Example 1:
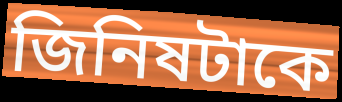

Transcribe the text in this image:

জিনিষটাকে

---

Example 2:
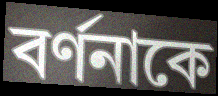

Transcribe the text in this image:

বর্ণনাকে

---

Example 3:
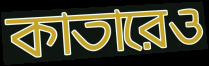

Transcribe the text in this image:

কাতারেও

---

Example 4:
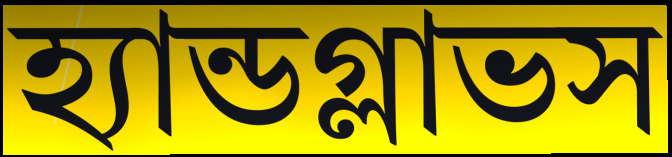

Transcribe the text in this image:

হ্যান্ডগ্লাভস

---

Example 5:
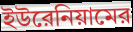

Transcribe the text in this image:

ইউরেনিয়ামের